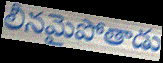
లీనమైపోతాడు